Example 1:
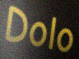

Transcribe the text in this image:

Dolo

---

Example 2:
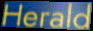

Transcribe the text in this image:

Herald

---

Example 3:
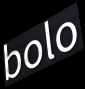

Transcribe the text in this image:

bolo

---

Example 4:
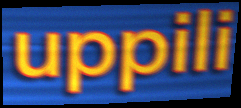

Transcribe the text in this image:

uppili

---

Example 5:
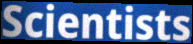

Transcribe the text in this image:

Scientists